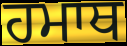
ਹਮਾਥ